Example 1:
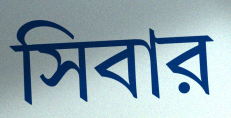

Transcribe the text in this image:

সিবার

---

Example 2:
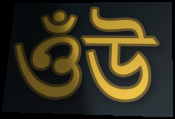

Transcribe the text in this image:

ওঁউ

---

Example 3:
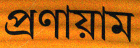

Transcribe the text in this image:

প্রণায়াম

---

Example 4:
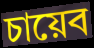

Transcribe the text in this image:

চায়েব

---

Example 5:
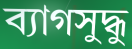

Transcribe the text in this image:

ব্যাগসুদ্ধু